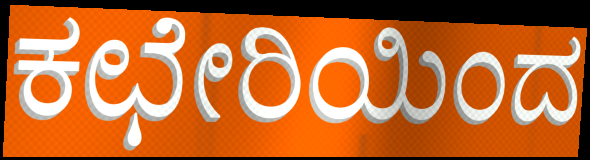
ಕಛೇರಿಯಿಂದ